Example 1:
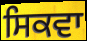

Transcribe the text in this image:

ਸਿਕਵਾ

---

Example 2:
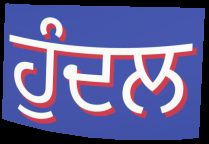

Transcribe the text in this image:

ਹੁੰਦਲ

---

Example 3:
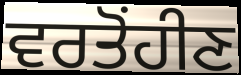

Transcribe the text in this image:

ਵਰਤੋਂਹੀਣ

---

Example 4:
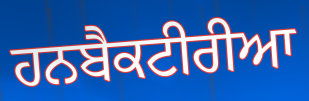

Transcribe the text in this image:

ਹਨਬੈਕਟੀਰੀਆ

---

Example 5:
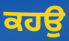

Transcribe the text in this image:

ਕਹਉ